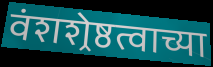
वंशश्रेष्ठत्वाच्या